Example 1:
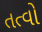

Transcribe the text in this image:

તત્વો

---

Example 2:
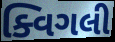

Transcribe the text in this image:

ક્વિગલી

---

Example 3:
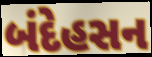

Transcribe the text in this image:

બંદેહસન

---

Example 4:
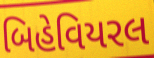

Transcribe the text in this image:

બિહેવિયરલ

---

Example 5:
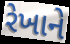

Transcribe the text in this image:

રેખાને